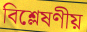
বিশ্লেষণীয়